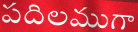
పదిలముగా